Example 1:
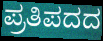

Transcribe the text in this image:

ಪ್ರತಿಪದದ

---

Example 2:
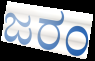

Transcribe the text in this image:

ಜರಂ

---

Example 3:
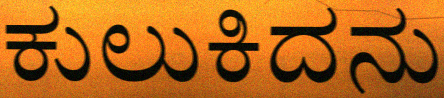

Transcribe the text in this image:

ಕುಲುಕಿದನು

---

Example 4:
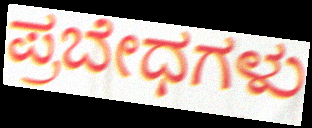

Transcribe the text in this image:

ಪ್ರಬೇಧಗಳು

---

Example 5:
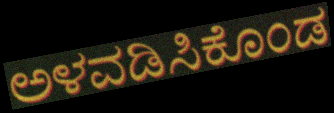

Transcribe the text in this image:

ಅಳವಡಿಸಿಕೊಂಡ